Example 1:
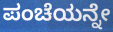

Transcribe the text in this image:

ಪಂಚೆಯನ್ನೇ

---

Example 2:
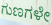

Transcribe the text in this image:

ಗುಣಗಳೇ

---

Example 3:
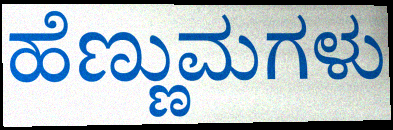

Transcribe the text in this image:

ಹೆಣ್ಣುಮಗಳು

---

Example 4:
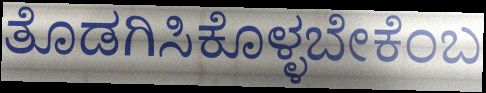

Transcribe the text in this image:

ತೊಡಗಿಸಿಕೊಳ್ಳಬೇಕೆಂಬ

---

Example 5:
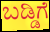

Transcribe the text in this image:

ಬಡ್ಡಿಗೆ